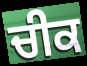
ਚੀਕ